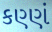
કણ્ણં